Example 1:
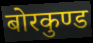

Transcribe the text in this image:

बोरकुण्ड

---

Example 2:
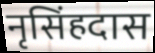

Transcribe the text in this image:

नृसिंहदास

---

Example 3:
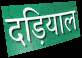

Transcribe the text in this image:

दड़ियाल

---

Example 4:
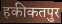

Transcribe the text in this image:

हकीकतपुर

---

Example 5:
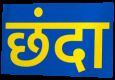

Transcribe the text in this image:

छंदा